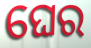
ଘେର